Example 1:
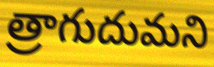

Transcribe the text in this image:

త్రాగుదుమని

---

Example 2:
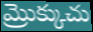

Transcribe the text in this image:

మ్రొక్కుచు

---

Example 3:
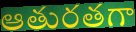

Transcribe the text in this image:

ఆతురతగా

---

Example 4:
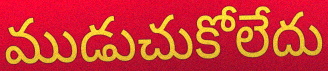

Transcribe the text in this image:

ముడుచుకోలేదు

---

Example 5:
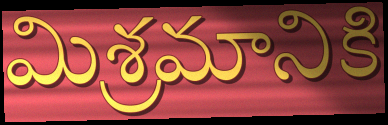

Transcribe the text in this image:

మిశ్రమానికి